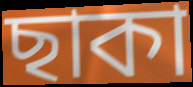
ছাকা